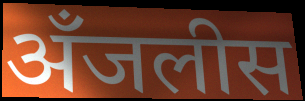
अँजलीस